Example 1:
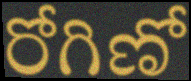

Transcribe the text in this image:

రోగిణో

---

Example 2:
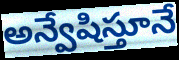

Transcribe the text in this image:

అన్వేషిస్తూనే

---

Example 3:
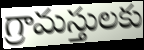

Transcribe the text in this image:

గ్రామస్తులకు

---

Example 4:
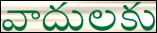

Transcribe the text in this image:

వాదులకు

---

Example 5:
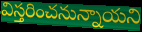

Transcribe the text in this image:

విస్తరించనున్నాయని